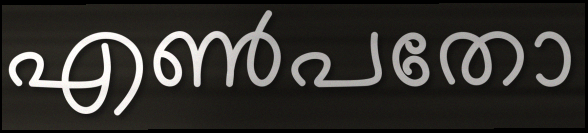
എൺപതോ